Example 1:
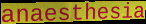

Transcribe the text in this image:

anaesthesia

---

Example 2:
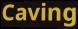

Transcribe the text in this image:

Caving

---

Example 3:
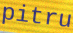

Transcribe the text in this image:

pitru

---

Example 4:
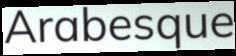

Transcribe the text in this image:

Arabesque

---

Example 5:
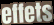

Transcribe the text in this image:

effets